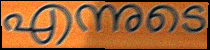
എന്നുടെ